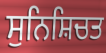
ਸੁਨਿਸ਼ਿਚਤ